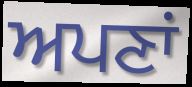
ਅਪਣਾਂ